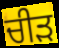
ਚੀੜ